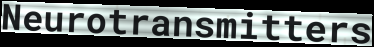
Neurotransmitters